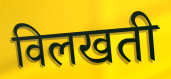
विलखती